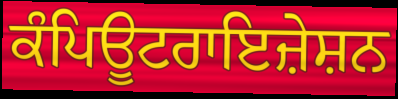
ਕੰਪਿਊਟਰਾਇਜ਼ੇਸ਼ਨ